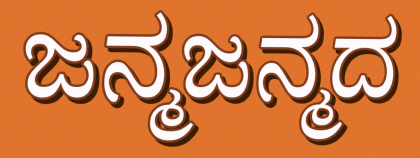
ಜನ್ಮಜನ್ಮದ